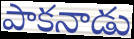
పాకనాడు